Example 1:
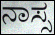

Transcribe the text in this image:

ನಾಸ್ಸ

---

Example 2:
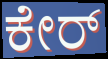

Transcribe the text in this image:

ಕೇರ್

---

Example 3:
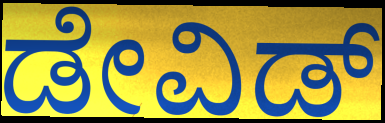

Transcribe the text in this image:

ಡೇವಿಡ್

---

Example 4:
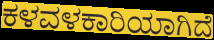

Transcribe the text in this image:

ಕಳವಳಕಾರಿಯಾಗಿದೆ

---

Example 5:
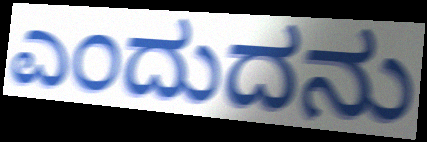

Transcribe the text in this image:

ಎಂದುದನು